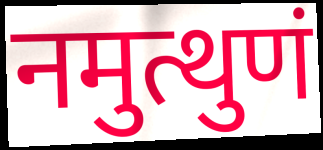
नमुत्थुणं